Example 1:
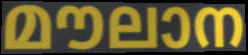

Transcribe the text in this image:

മൗലാന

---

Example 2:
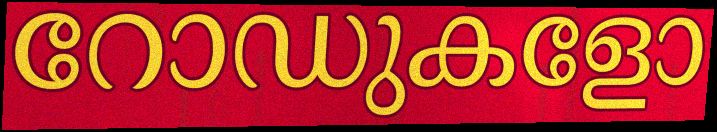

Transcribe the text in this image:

റോഡുകളോ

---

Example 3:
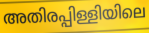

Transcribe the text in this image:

അതിരപ്പിള്ളിയിലെ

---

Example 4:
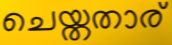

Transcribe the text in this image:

ചെയ്തതാര്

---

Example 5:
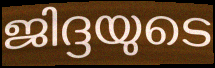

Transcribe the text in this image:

ജിദ്ദയുടെ